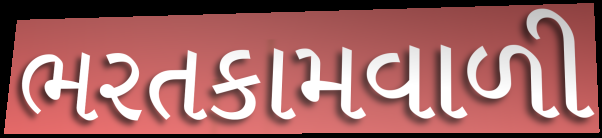
ભરતકામવાળી